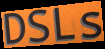
DSLs